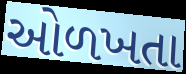
ઓળખતા